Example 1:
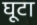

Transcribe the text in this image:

घूटा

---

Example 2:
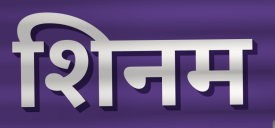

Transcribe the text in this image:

शिनम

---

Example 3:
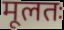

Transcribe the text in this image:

मूलतः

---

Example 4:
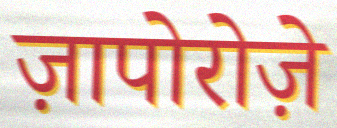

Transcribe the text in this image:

ज़ापोरोज़े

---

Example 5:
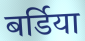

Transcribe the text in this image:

बर्डिया